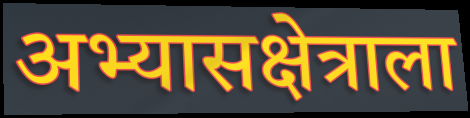
अभ्यासक्षेत्राला